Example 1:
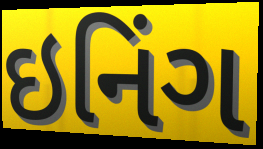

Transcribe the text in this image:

ઇનિંગ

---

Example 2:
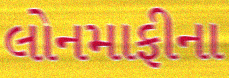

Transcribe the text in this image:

લોનમાફીના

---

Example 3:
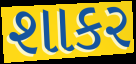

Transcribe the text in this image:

શાકર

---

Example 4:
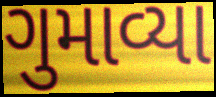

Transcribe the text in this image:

ગુમાવ્યા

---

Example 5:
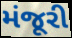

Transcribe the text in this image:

મંજૂરી